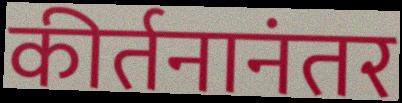
कीर्तनानंतर